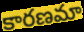
కారణమా